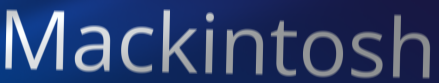
Mackintosh